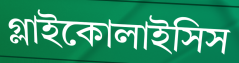
গ্লাইকোলাইসিস